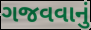
ગજવવાનું